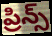
ప్రిన్స్